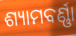
ଶ୍ୟାମବର୍ଣ୍ଣା